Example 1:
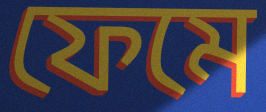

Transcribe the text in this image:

ফেমে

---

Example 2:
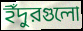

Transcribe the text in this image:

ইঁদুরগুলো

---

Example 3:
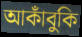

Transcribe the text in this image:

আকাঁবুকি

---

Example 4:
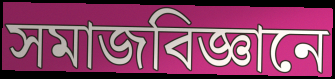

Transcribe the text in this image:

সমাজবিজ্ঞানে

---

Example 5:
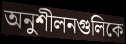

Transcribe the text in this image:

অনুশীলনগুলিকে